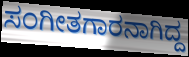
ಸಂಗೀತಗಾರನಾಗಿದ್ದ